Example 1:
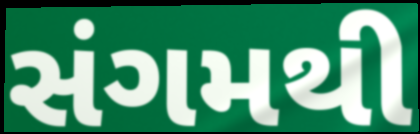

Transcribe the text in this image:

સંગમથી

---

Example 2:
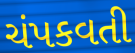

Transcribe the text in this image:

ચંપકવતી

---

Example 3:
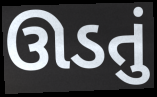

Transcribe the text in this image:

ઊડતું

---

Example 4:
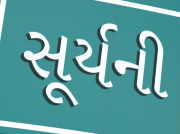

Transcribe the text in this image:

સૂર્યની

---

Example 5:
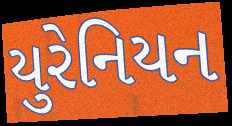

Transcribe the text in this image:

યુરેનિયન